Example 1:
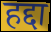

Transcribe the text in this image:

हद्दा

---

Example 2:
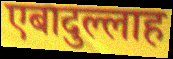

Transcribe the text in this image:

एबादुल्लाह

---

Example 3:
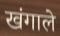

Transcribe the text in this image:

खंगाले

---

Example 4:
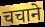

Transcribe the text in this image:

चचाने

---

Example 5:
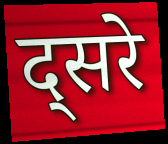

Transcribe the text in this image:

द्सरे